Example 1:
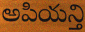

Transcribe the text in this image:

అపియన్తి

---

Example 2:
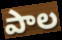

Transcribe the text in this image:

పాల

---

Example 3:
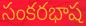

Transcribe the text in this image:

సంకరభాష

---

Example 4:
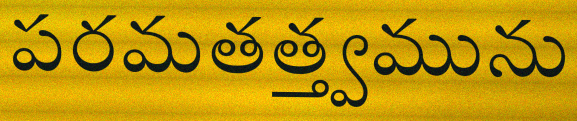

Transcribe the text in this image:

పరమతత్త్వమును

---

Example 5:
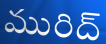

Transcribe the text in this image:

మురిద్